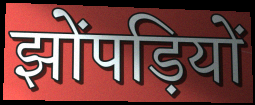
झोंपड़ियों